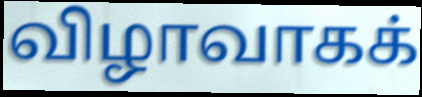
விழாவாகக்